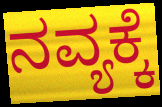
ನವ್ಯಕ್ಕೆ